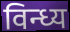
विन्ध्य